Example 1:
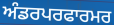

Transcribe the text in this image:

ਅੰਡਰਪਰਫਾਰਮਰ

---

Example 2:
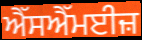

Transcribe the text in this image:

ਐੱਸਐੱਮਈਜ਼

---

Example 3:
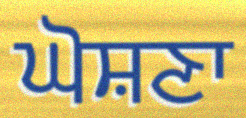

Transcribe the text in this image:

ਘੋਸ਼ਣਾ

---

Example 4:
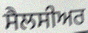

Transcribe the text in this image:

ਸੈਲਸੀਅਰ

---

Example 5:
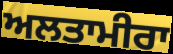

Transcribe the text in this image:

ਅਲਤਾਮੀਰਾ